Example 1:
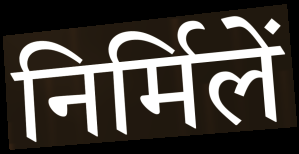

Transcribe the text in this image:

निर्मिलें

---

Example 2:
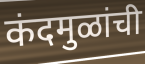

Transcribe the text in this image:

कंदमुळांची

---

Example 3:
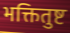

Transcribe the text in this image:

भक्तितुष्ट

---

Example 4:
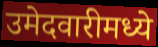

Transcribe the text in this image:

उमेदवारीमध्ये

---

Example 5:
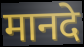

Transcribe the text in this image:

मानदे